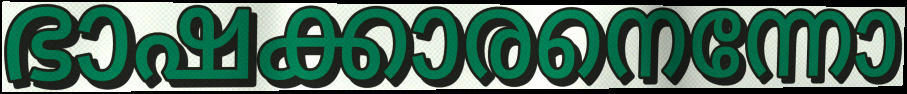
ഭാഷക്കാരനെന്നോ